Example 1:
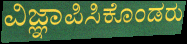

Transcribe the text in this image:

ವಿಜ್ಞಾಪಿಸಿಕೊಂಡರು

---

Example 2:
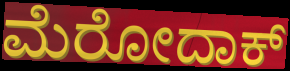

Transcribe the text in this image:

ಮೆರೋದಾಕ್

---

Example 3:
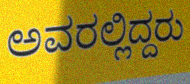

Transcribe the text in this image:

ಅವರಲ್ಲಿದ್ದರು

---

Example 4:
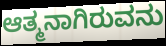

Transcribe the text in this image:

ಆತ್ಮನಾಗಿರುವನು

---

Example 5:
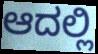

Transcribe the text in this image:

ಆದಲ್ಲಿ